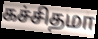
கச்சிதமா